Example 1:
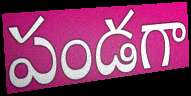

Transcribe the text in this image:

పండగా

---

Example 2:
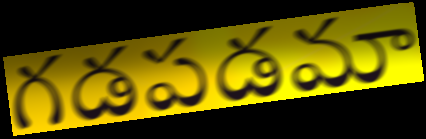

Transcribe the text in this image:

గడపడమా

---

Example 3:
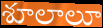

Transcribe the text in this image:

శూలాలూ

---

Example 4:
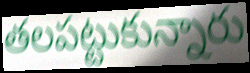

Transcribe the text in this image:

తలపట్టుకున్నారు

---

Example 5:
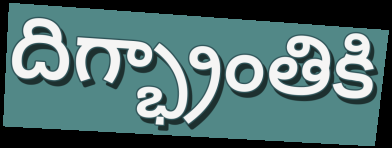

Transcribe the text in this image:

దిగ్భ్రాంతికి